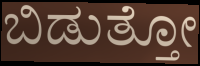
ಬಿಡುತ್ತೋ